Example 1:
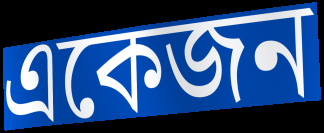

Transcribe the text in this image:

একেজন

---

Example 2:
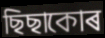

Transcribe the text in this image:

ছিছাকোৰ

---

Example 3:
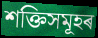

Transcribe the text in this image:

শক্তিসমূহৰ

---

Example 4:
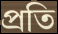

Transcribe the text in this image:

প্ৰতি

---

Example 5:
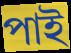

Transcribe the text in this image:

পাই